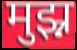
मुझ्न